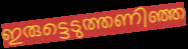
ഇരുട്ടെടുത്തണിഞ്ഞ